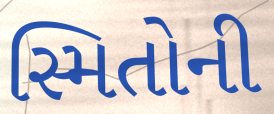
સ્મિતોની